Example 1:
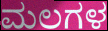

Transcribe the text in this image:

ಮಲಗಳ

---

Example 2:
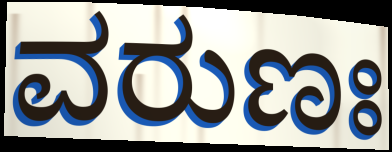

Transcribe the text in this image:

ವರುಣಃ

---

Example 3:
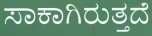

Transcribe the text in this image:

ಸಾಕಾಗಿರುತ್ತದೆ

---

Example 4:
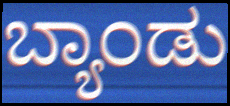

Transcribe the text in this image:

ಬ್ಯಾಂಡು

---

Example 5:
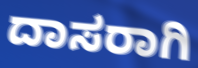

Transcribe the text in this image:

ದಾಸರಾಗಿ